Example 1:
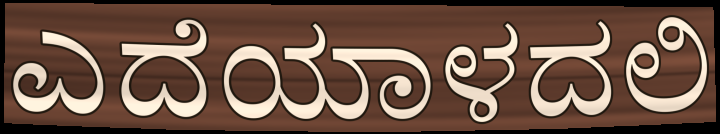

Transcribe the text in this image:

ಎದೆಯಾಳದಲಿ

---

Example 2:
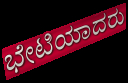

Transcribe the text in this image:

ಭೇಟಿಯಾದರು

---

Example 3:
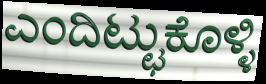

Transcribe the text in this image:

ಎಂದಿಟ್ಟುಕೊಳ್ಳಿ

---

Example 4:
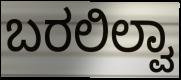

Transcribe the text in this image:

ಬರಲಿಲ್ವಾ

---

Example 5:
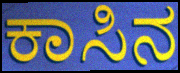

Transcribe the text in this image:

ಕಾಸಿನ